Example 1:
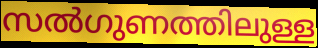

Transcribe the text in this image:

സൽഗുണത്തിലുള്ള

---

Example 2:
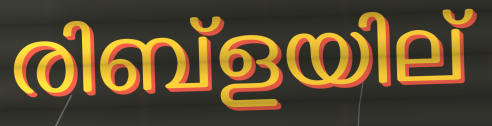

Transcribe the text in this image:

രിബ്ളയില്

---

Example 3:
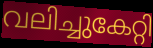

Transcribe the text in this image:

വലിച്ചുകേറ്റി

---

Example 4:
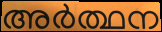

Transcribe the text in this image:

അർത്ഥന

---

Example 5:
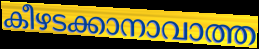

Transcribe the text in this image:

കീഴടക്കാനാവാത്ത